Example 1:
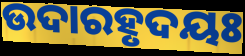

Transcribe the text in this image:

ଉଦାରହୃଦୟଃ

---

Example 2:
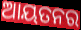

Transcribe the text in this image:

ଆୟତନର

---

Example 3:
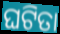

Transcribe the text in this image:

ଘଟିତା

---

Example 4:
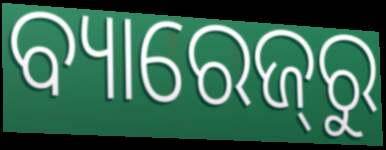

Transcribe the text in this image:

ବ୍ୟାରେଜ୍‌ରୁ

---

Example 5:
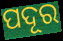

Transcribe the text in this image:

ପଦୂର